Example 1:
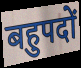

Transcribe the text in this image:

बहुपदों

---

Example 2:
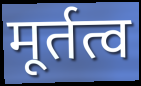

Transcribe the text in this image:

मूर्तत्व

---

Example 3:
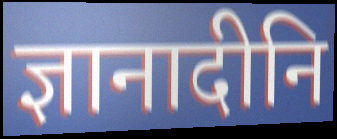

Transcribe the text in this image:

ज्ञानादीनि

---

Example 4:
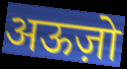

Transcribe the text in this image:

अऊज़ो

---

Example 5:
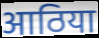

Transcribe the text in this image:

आठिया